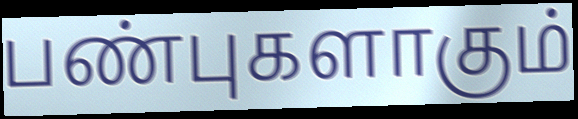
பண்புகளாகும்